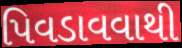
પિવડાવવાથી